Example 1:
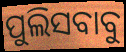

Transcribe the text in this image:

ପୁଲିସବାବୁ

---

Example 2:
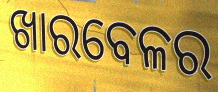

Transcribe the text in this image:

ଖାରବେଳର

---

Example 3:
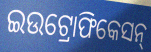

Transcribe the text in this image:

ଇଉଟ୍ରୋଫିକେସନ୍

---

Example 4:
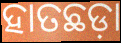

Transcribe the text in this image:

ହାତଛଡ଼ା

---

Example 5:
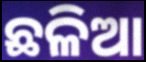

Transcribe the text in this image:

ଛଳିଆ